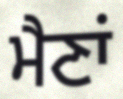
ਮੈਣਾਂ